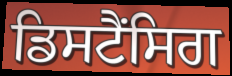
ਡਿਸਟੈਂਸਿਗ